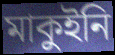
মাকুইনি